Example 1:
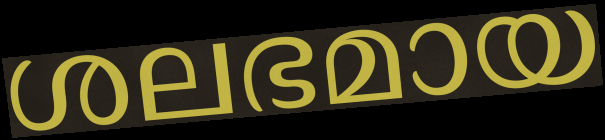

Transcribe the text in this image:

ശലഭമായ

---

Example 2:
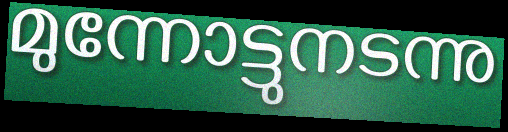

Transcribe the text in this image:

മുന്നോട്ടുനടന്നു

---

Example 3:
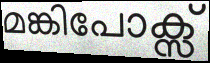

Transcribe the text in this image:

മങ്കിപോക്സ്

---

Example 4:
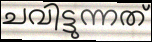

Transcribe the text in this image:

ചവിട്ടുന്നത്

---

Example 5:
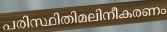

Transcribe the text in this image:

പരിസ്ഥിതിമലിനീകരണം